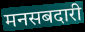
मनसबदारी